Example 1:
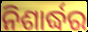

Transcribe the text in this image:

ନିଶାର୍ଦ୍ଧର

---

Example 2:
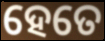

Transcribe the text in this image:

ହେତେ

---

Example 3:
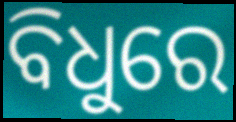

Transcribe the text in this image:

ବିଧୁରେ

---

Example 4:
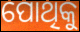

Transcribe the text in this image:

ପୋଥିକୁ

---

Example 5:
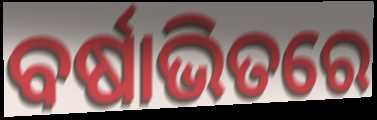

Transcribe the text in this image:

ବର୍ଷାଭିତରେ